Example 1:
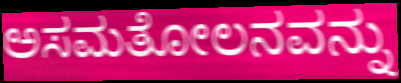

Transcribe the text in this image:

ಅಸಮತೋಲನವನ್ನು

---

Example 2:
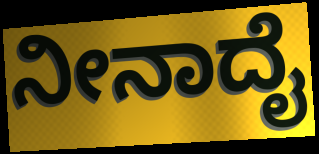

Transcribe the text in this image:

ನೀನಾದೈ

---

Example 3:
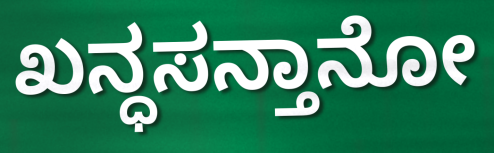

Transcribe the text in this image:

ಖನ್ಧಸನ್ತಾನೋ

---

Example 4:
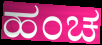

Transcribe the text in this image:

ಹಂಚ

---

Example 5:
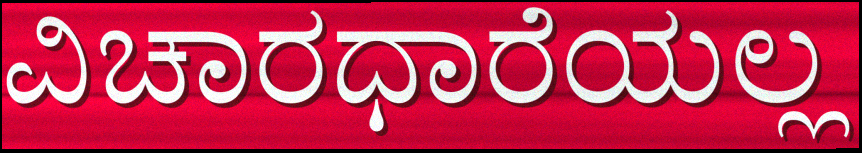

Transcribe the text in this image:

ವಿಚಾರಧಾರೆಯಲ್ಲ